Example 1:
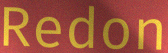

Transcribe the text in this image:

Redon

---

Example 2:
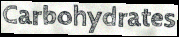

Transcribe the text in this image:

Carbohydrates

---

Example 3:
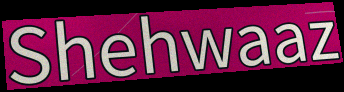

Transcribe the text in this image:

Shehwaaz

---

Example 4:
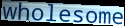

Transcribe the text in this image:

wholesome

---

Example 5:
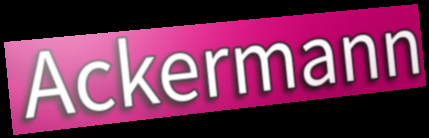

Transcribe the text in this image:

Ackermann